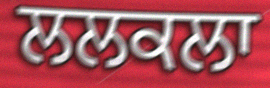
ਲਲਕਲਾ